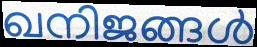
ഖനിജങ്ങൾ